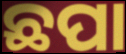
ଛପା